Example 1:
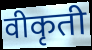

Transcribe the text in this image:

वीकृती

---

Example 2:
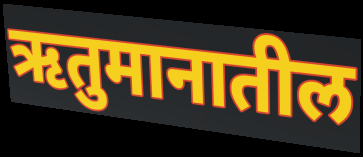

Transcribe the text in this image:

ऋतुमानातील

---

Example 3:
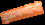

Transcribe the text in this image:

चुडामणींनी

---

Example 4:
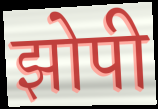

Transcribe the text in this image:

झोपी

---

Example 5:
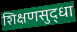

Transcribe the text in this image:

शिक्षणसुद्धा